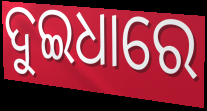
ଦୁଇଧାରେ